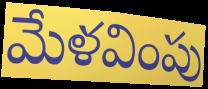
మేళవింపు